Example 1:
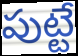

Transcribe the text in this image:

పుట్టే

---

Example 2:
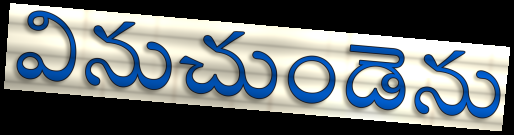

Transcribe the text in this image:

వినుచుండెను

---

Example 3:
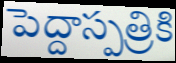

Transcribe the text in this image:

పెద్దాస్పత్రికి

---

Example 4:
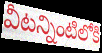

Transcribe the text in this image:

వీటన్నింటిలోకి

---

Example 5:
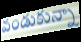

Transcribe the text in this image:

వండుకున్నా